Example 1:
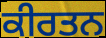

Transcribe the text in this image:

ਕੀਰਤਨ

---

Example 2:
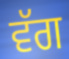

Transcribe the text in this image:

ਵੱਗ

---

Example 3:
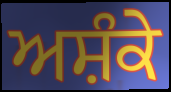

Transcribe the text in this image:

ਅਸ਼ੰਕੇ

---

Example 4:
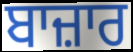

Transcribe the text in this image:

ਬਾਜ਼ਾਰ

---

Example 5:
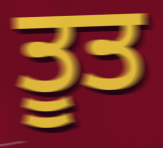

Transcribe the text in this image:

ਤੂਤ